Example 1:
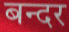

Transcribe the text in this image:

बन्दर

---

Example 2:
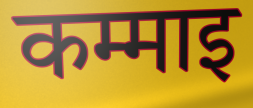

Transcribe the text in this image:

कम्माइ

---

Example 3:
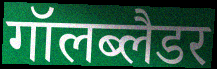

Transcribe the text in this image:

गॉलब्लैडर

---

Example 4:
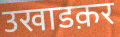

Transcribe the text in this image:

उखाडक़र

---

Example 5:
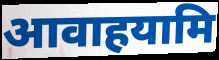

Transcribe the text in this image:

आवाहयामि